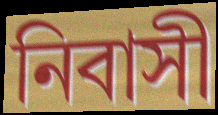
নিবাসী